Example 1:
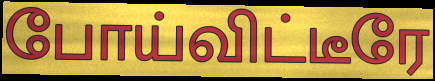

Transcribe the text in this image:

போய்விட்டீரே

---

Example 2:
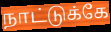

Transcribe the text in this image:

நாட்டுக்கே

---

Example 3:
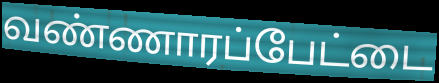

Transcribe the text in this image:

வண்ணாரப்பேட்டை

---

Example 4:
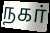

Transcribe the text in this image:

நகர்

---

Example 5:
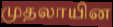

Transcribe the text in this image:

முதலாயின